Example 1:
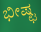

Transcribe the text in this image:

ಭೀಷ್ಟ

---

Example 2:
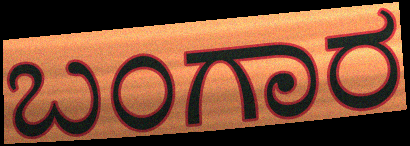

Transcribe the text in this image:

ಬಂಗಾರ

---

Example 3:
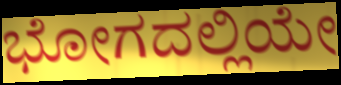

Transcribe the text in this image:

ಭೋಗದಲ್ಲಿಯೇ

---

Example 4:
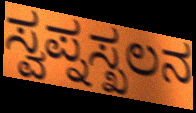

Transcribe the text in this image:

ಸ್ವಪ್ನಸ್ಖಲನ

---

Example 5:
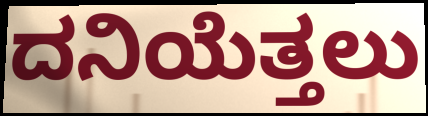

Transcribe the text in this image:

ದನಿಯೆತ್ತಲು